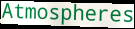
Atmospheres